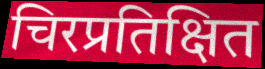
चिरप्रतिक्षित